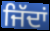
ਜਿੱਦਾਂ